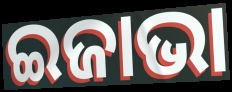
ଇଜାଭା